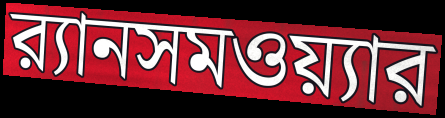
র‍্যানসমওয়্যার